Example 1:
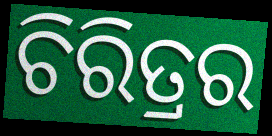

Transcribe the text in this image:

ଚିରିତ୍ରର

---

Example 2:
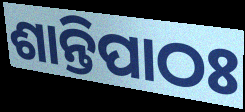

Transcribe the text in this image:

ଶାନ୍ତିପାଠଃ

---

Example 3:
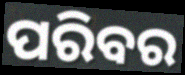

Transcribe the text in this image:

ପରିବର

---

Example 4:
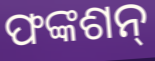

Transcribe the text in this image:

ଫଙ୍କଶନ୍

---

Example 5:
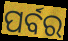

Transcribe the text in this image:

ପର୍ବର